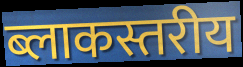
ब्लाकस्तरीय